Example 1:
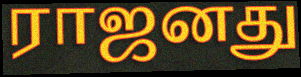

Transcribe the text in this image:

ராஜனது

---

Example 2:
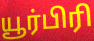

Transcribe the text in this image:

யூர்பிரி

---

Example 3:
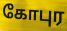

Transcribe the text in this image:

கோபுர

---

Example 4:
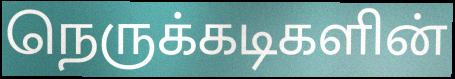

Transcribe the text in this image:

நெருக்கடிகளின்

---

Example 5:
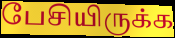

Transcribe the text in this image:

பேசியிருக்க